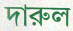
দারুল